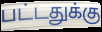
பட்டதுக்கு